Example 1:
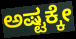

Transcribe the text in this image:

ಅಷ್ಟಕ್ಕೇ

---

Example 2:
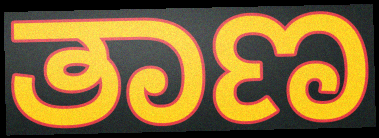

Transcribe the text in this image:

ತಾಣ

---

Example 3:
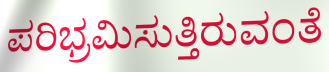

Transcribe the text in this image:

ಪರಿಭ್ರಮಿಸುತ್ತಿರುವಂತೆ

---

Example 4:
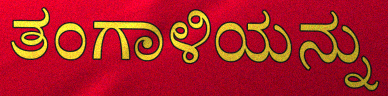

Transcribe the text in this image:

ತಂಗಾಳಿಯನ್ನು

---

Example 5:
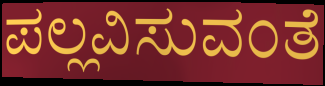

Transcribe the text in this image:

ಪಲ್ಲವಿಸುವಂತೆ